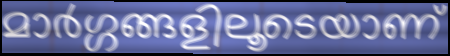
മാർഗ്ഗങ്ങളിലൂടെയാണ്